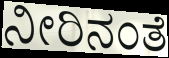
ನೀರಿನಂತೆ